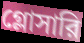
গ্লোসারি